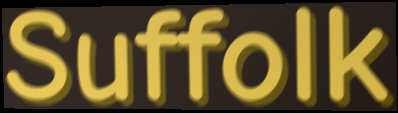
Suffolk